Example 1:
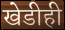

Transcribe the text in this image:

खेडीही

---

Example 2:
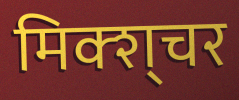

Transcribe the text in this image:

मिक्श्चर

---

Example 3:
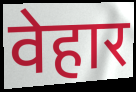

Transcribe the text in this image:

वेहार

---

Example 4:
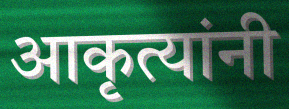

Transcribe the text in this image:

आकृत्यांनी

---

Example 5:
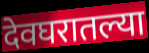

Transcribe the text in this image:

देवघरातल्या